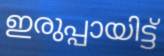
ഇരുപ്പായിട്ട്